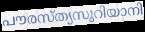
പൗരസ്ത്യസുറിയാനി